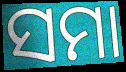
ସମା